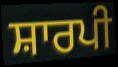
ਸ਼ਾਰਪੀ